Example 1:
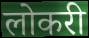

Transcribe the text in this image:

लोकरी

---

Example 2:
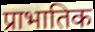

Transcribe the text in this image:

प्राभातिक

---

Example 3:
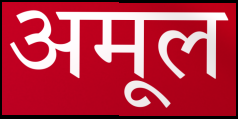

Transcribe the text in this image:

अमूल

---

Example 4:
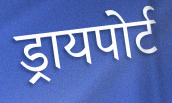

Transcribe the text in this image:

ड्रायपोर्ट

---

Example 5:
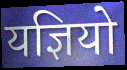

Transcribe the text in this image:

यज्ञियो